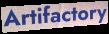
Artifactory